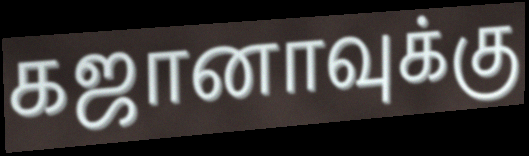
கஜானாவுக்கு